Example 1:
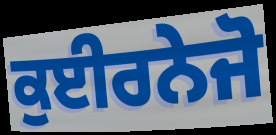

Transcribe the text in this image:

ਕੁਈਰਨੇਜੋ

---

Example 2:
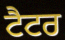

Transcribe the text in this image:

ਟੈਟਰ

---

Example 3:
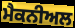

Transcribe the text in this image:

ਮੈਕਨੀਅਲ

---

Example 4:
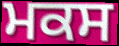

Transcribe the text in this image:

ਮਕਸ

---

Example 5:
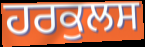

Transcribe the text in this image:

ਹਰਕੁਲਸ